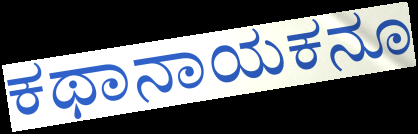
ಕಥಾನಾಯಕನೂ